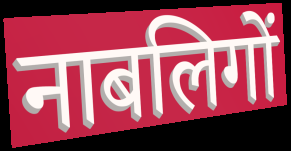
नाबलिगों